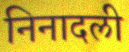
निनादली